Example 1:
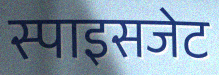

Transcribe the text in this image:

स्‍पाइसजेट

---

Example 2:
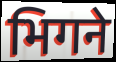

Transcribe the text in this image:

भिगने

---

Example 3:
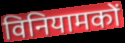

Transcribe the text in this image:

विनियामकों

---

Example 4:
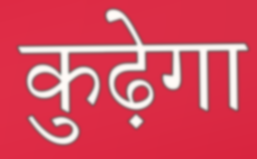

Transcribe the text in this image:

कुढ़ेगा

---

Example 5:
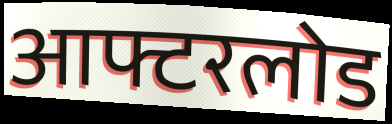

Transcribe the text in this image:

आफ्टरलोड